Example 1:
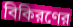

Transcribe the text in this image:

বিকিরণের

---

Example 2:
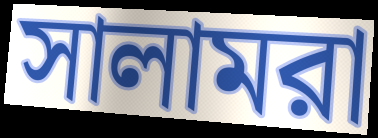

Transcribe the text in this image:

সালামরা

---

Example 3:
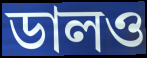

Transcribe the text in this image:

ডালও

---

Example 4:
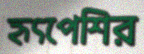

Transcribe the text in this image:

হৃৎপেশির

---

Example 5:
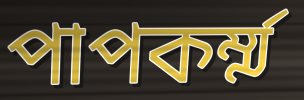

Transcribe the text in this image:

পাপকর্ম্ম